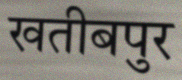
खतीबपुर